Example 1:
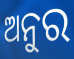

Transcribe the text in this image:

ଅନୁର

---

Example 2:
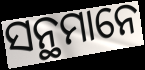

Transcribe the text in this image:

ସନ୍ଥମାନେ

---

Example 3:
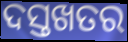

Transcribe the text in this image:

ଦସ୍ତଖତର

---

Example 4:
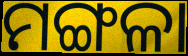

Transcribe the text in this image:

ମଙ୍ଗଳା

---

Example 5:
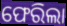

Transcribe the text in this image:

ଫେରିଲା